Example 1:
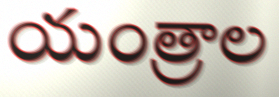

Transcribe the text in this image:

యంత్రాల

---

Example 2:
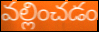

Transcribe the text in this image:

వల్లించడం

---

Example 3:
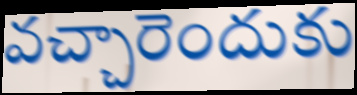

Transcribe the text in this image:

వచ్చారెందుకు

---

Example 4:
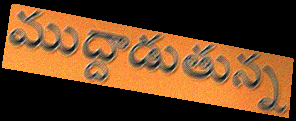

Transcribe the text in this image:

ముద్దాడుతున్న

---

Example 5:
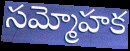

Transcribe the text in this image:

సమ్మోహక